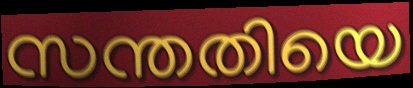
സന്തതിയെ